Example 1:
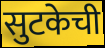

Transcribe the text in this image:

सुटकेची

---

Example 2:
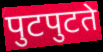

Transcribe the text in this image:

पुटपुटते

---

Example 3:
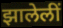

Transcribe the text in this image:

झालेलीं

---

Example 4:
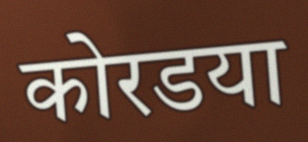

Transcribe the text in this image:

कोरडया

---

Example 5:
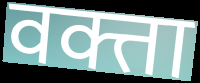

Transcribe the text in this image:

वक्ता